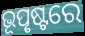
ଭୂପୃଷ୍ଟରେ